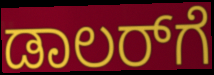
ಡಾಲರ್‌ಗೆ